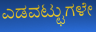
ಎಡವಟ್ಟುಗಳೇ